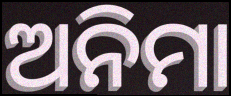
ଅନିମା